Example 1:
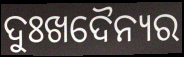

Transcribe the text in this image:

ଦୁଃଖଦୈନ୍ୟର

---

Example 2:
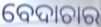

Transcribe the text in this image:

ବେଦାଚାର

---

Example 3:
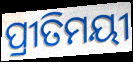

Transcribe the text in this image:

ପ୍ରୀତିମୟୀ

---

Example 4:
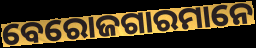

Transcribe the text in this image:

ବେରୋଜଗାରମାନେ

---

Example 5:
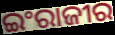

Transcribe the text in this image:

ଇଂରାଜୀର